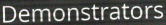
Demonstrators